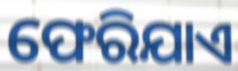
ଫେରିଯାଏ